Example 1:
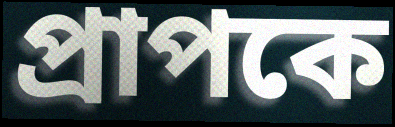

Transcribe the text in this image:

প্রাপকে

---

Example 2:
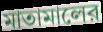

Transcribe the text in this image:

মাতামালের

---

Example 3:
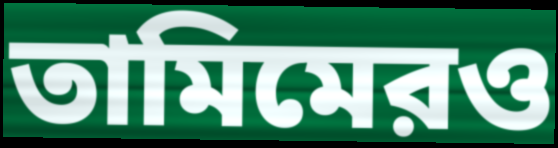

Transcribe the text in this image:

তামিমেরও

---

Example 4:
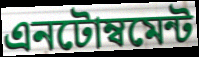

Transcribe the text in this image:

এনটোম্বমেন্ট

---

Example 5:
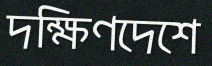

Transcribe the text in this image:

দক্ষিণদেশে